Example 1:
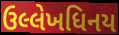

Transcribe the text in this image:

ઉલ્લેખધિનય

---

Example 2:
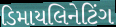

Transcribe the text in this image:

ડિમાયલિનેટિંગ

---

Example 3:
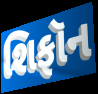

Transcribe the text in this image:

શિફૉન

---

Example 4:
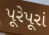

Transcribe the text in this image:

પૂરેપૂરાં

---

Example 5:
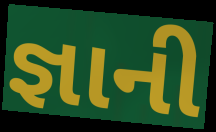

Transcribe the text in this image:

જ્ઞાની